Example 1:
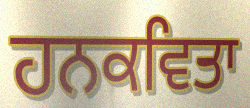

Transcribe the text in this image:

ਹਨਕਵਿਤਾ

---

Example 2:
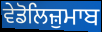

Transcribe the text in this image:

ਵੇਡੋਲਿਜ਼ੁਮਾਬ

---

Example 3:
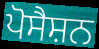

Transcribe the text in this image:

ਪੋਸੈਸ਼ਨ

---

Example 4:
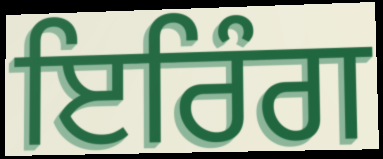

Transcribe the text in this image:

ਇਰਿੰਗ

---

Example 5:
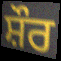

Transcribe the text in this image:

ਸ਼ੌਰ